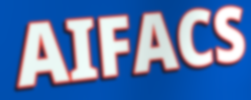
AIFACS